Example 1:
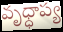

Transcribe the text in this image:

వృధ్ధాప్య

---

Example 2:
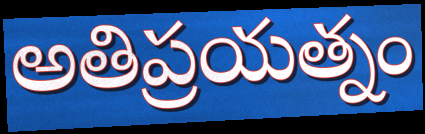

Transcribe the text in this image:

అతిప్రయత్నం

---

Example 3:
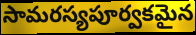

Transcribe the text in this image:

సామరస్యపూర్వకమైన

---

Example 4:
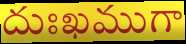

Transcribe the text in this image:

దుఃఖముగా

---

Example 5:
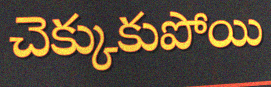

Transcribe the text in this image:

చెక్కుకుపోయి